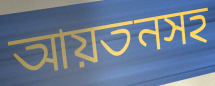
আয়তনসহ